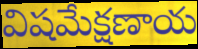
విషమేక్షణాయ